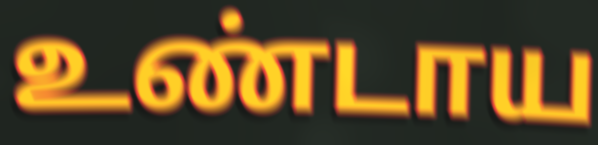
உண்டாய